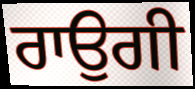
ਰਾਉਗੀ